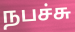
நபச்சு